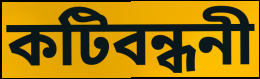
কটিবন্ধনী